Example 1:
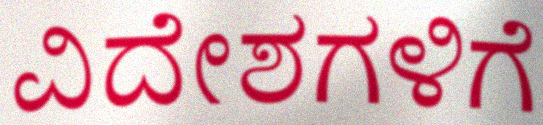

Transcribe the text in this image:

ವಿದೇಶಗಳಿಗೆ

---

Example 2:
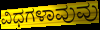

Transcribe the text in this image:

ವಿಧಗಳಾವುವು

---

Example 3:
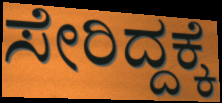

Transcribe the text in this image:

ಸೇರಿದ್ದಕ್ಕೆ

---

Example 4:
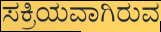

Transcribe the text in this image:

ಸಕ್ರಿಯವಾಗಿರುವ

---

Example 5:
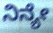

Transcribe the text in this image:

ನಿನ್ಯೇ